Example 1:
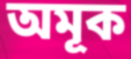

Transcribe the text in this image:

অমূক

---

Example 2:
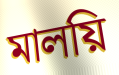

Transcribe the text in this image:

মালয়ি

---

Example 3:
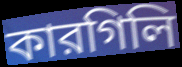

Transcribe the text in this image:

কারগিলি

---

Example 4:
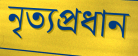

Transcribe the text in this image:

নৃত্যপ্রধান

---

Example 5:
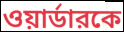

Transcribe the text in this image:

ওয়ার্ডারকে